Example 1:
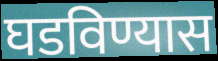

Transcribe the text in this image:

घडविण्यास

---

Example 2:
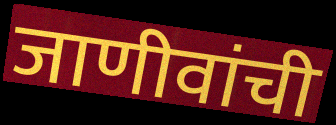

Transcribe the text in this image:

जाणीवांची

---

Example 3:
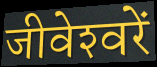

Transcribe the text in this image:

जीवेश्वरें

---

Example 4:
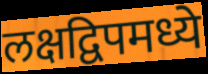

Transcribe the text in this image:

लक्षद्विपमध्ये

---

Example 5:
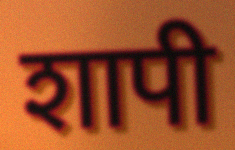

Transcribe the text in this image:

शापी